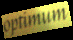
optimum